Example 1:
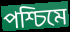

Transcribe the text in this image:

পশ্চিমে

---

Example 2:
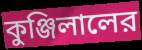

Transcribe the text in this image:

কুঞ্জিলালের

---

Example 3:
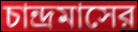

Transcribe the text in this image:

চান্দ্রমাসের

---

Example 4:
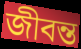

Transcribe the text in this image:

জীবন্ত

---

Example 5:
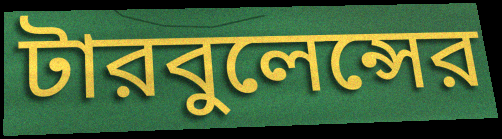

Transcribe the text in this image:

টারবুলেন্সের